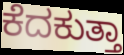
ಕೆದಕುತ್ತಾ